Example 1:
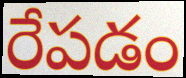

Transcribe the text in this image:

రేపడం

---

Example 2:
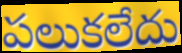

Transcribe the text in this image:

పలుకలేదు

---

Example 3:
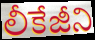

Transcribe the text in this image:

లీకేజీని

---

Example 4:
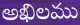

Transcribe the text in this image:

అఖిలము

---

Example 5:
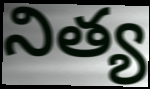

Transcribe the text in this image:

నిత్య